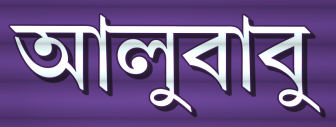
আলুবাবু